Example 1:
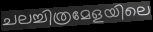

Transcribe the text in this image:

ചലച്ചിത്രമേളയിലെ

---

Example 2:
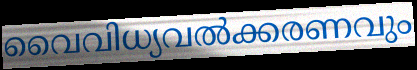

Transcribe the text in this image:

വൈവിധ്യവൽക്കരണവും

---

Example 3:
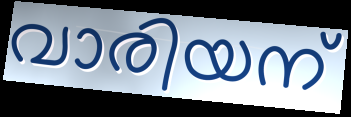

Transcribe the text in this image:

വാരിയന്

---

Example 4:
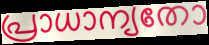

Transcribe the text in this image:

പ്രാധാന്യതോ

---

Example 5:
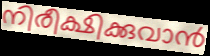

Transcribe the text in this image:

നിരീക്ഷിക്കുവാൻ